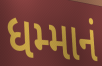
ધમ્માનં